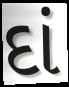
દાં